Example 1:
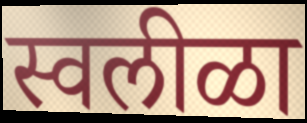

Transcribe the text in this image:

स्वलीळा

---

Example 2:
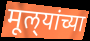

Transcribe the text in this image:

मूल्यांच्या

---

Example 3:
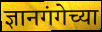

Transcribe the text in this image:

ज्ञानगंगेच्या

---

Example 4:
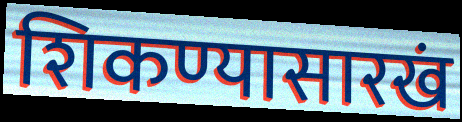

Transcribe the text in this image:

शिकण्यासारखं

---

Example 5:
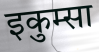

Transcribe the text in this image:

इकुम्सा